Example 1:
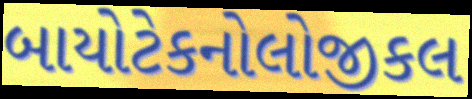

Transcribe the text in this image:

બાયોટેકનોલોજીકલ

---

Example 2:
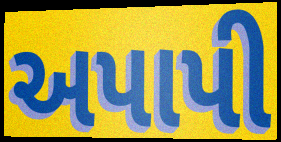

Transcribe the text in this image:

અપાપી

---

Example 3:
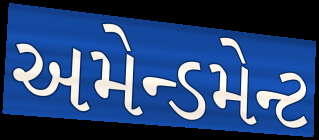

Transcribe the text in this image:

અમેન્ડમેન્ટ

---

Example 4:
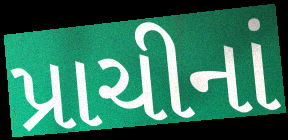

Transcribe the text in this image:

પ્રાચીનાં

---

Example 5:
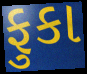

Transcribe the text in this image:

ફુકા